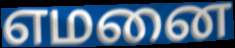
எமனை